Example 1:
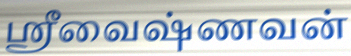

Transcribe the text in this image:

ஸ்ரீவைஷ்ணவன்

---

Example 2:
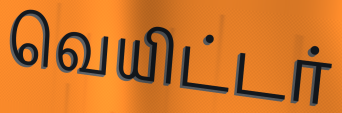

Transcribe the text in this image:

வெயிட்டர்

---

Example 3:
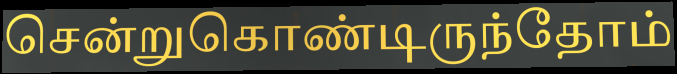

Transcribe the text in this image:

சென்றுகொண்டிருந்தோம்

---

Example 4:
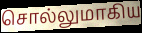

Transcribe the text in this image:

சொல்லுமாகிய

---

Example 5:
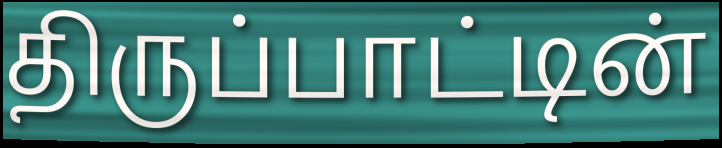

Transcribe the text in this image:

திருப்பாட்டின்